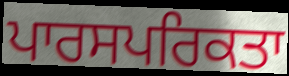
ਪਾਰਸਪਰਿਕਤਾ